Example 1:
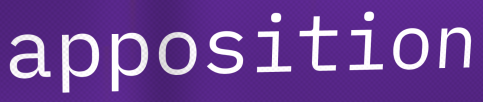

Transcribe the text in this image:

apposition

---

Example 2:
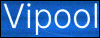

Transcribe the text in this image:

Vipool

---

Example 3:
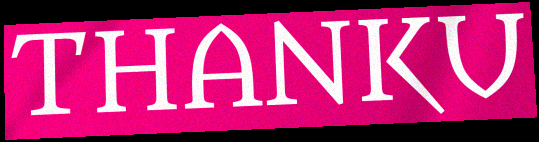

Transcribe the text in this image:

THANKU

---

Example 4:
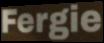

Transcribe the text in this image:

Fergie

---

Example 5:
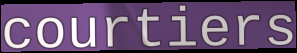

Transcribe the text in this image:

courtiers